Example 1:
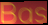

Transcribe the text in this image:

Bas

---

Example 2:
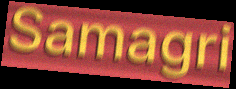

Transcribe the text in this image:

Samagri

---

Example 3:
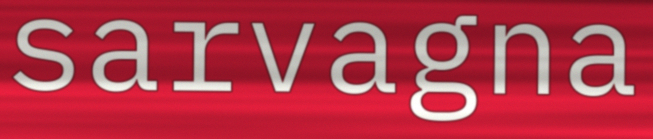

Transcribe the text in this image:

sarvagna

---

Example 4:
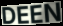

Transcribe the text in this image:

DEEN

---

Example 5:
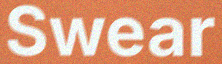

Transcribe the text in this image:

Swear